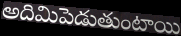
అదిమిపెడుతుంటాయి